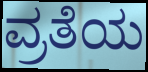
ವ್ರತೆಯ